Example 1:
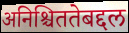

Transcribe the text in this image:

अनिश्चिततेबद्दल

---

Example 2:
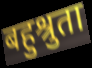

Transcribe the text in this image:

बहुश्रुता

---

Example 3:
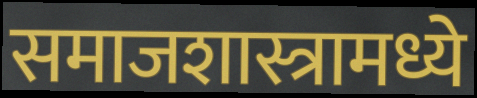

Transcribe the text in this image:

समाजशास्त्रामध्ये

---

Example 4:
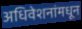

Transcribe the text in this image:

अधिवेशनांमधून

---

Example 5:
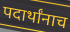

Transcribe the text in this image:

पदार्थांनाच